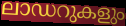
ലാഡറുകളും